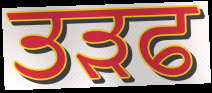
ਤੜਫ